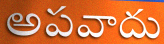
అపవాదు